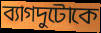
ব্যাগদুটোকে